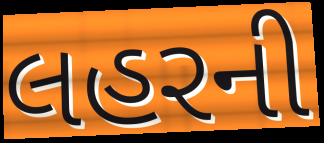
લહરની